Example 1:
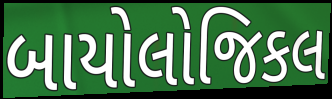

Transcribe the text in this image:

બાયોલોજિકલ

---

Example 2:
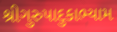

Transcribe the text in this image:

શ્રીગુરુપાદુકાભ્યામ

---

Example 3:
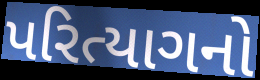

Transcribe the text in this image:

પરિત્યાગનો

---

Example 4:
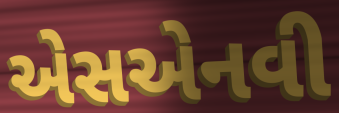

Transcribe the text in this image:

એસએનવી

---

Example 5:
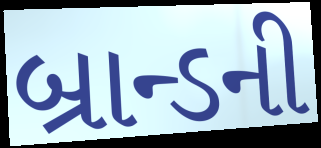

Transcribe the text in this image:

બ્રાન્ડની